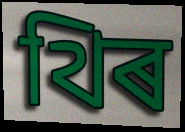
থিৰ